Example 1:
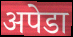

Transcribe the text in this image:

अपेडा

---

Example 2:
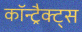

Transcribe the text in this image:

कॉन्ट्रैक्ट्स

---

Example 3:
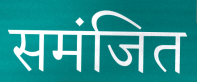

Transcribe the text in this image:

समंजित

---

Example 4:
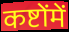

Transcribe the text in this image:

कष्टोंमें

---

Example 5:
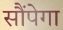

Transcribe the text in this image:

सौंपेगा